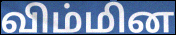
விம்மின